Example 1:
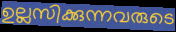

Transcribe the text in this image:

ഉല്ലസിക്കുന്നവരുടെ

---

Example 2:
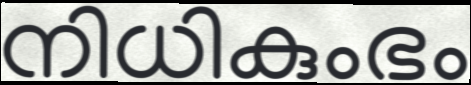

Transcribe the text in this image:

നിധികുംഭം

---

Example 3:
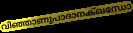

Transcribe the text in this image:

വിഞ്ഞാണുപാദാനക്ഖന്ധോ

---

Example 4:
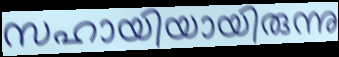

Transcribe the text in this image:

സഹായിയായിരുന്നു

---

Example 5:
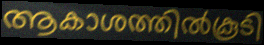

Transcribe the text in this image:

ആകാശത്തിൽകൂടി